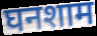
घनशाम